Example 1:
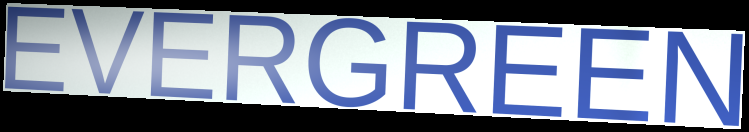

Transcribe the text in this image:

EVERGREEN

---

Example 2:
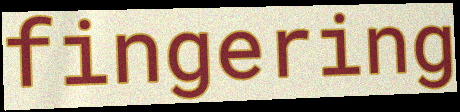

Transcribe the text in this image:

fingering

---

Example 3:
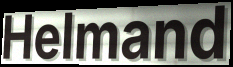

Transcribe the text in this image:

Helmand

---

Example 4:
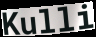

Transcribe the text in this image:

Kulli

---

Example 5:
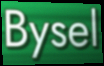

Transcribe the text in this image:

Bysel